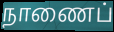
நாணைப்